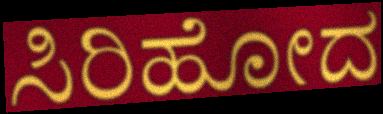
ಸಿರಿಹೋದ